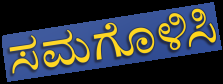
ಸಮಗೊಳಿಸಿ